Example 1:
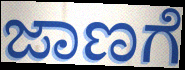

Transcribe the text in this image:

ಜಾಣಗೆ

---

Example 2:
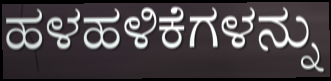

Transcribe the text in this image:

ಹಳಹಳಿಕೆಗಳನ್ನು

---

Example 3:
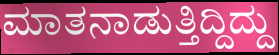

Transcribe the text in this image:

ಮಾತನಾಡುತ್ತಿದ್ದಿದ್ದು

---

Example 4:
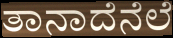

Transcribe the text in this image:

ತಾನಾದೆನೆಲೆ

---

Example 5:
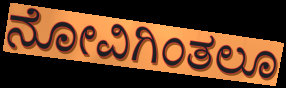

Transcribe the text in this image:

ನೋವಿಗಿಂತಲೂ